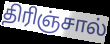
திரிஞ்சால்